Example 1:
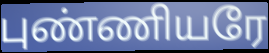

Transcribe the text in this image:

புண்ணியரே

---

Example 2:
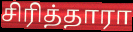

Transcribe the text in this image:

சிரித்தாரா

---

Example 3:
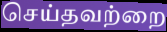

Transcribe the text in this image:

செய்தவற்றை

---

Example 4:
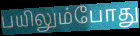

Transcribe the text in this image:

பயிலும்போது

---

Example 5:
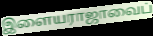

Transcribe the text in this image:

இளையராஜாவைப்